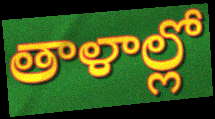
తాళాల్లో